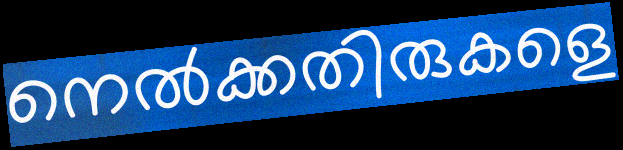
നെൽക്കതിരുകളെ